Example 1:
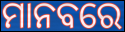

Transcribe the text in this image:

ମାନବରେ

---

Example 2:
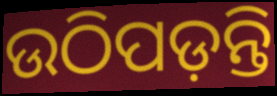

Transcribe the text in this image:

ଉଠିପଡ଼ନ୍ତି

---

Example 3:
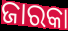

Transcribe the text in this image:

ଜାରକା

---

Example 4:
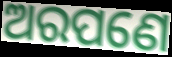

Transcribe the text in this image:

ଅରପଣେ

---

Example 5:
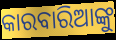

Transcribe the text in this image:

କାରବାରିଆଙ୍କୁ